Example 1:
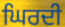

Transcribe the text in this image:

ਘਿਰਦੀ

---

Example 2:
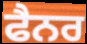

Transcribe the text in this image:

ਫੈਨਰ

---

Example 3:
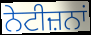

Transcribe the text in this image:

ਨੇਟੀਜ਼ਨਾਂ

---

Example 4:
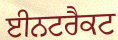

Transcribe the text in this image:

ਈਨਟਰੈਕਟ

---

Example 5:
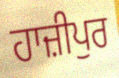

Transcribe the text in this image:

ਹਾਜ਼ੀਪੁਰ